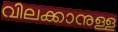
വിലക്കാനുള്ള